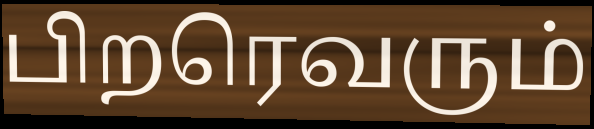
பிறரெவரும்